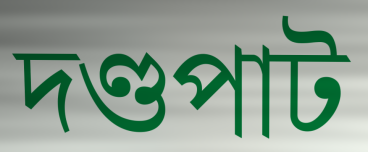
দণ্ডপাট